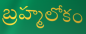
బ్రహ్మలోకం